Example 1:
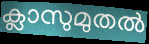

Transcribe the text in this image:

ക്ലാസുമുതൽ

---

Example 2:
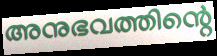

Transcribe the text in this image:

അനുഭവത്തിന്റെ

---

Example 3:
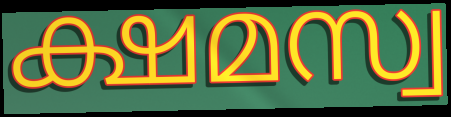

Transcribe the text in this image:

ക്ഷമസ്വ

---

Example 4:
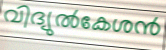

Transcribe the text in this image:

വിദ്യുൽകേശൻ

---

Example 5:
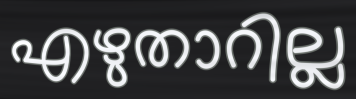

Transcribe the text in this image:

എഴുതാറില്ല